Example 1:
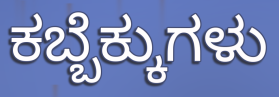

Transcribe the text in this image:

ಕಬ್ಬೆಕ್ಕುಗಳು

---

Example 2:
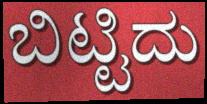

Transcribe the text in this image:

ಬಿಟ್ಟಿದು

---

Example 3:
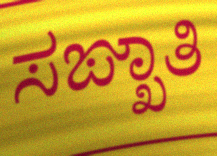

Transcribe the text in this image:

ಸಙ್ಖಾತಿ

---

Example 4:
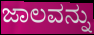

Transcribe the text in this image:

ಜಾಲವನ್ನು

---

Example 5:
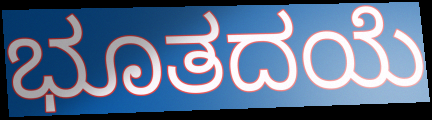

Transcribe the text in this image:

ಭೂತದಯೆ